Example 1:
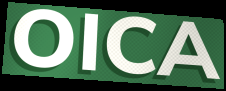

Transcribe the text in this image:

OICA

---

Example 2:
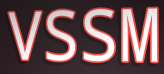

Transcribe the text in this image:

VSSM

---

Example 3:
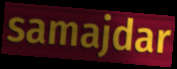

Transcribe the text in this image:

samajdar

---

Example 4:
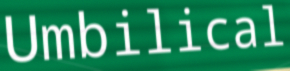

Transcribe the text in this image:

Umbilical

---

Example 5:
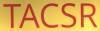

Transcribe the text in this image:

TACSR